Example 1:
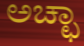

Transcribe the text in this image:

ಅಚ್ಛಾ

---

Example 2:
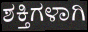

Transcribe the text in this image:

ಶಕ್ತಿಗಳಾಗಿ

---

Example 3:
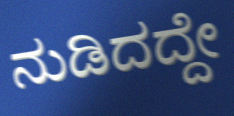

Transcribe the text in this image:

ನುಡಿದದ್ದೇ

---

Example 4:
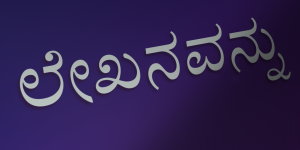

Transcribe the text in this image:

ಲೇಖನವನ್ನು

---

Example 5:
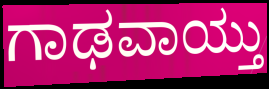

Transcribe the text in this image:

ಗಾಢವಾಯ್ತು